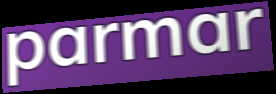
parmar